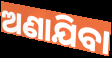
ଅଣାଯିବା